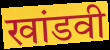
खांडवी